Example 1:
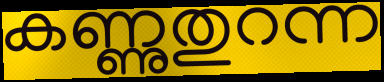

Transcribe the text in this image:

കണ്ണുതുറന്ന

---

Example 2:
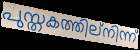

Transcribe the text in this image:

പുസ്തകത്തില്നിന്ന്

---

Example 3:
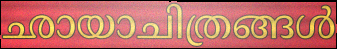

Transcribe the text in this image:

ഛായാചിത്രങ്ങൾ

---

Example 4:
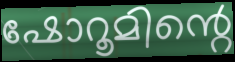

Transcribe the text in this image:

ഷോറൂമിന്റെ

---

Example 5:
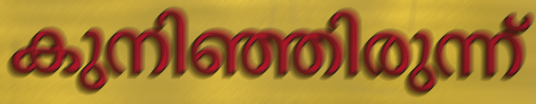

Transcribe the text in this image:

കുനിഞ്ഞിരുന്ന്